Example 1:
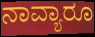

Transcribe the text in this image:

ನಾವ್ಯಾರೂ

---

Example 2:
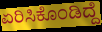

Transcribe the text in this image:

ಏರಿಸಿಕೊಂಡಿದ್ದೆ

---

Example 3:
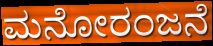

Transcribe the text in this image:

ಮನೋರಂಜನೆ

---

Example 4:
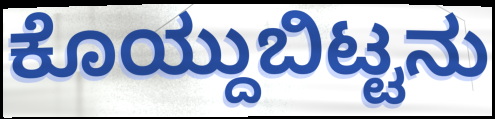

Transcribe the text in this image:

ಕೊಯ್ದುಬಿಟ್ಟನು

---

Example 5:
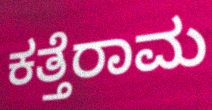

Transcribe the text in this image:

ಕತ್ತೆರಾಮ